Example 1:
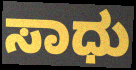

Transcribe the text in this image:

ಸಾಧು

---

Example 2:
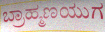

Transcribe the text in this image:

ಬ್ರಾಹ್ಮಣಯುಗ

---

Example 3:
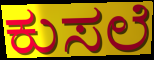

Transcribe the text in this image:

ಕುಸಲೆ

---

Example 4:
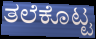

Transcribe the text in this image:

ತಲೆಕೊಟ್ಟ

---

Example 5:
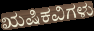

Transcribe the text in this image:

ಋಷಿಕವಿಗಳು